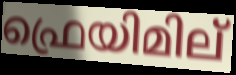
ഫ്രെയിമില്